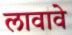
लावावे